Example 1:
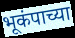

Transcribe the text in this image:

भूकंपाच्या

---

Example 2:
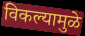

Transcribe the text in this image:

विकल्यामुळे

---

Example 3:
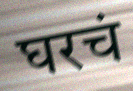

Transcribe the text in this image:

घरचं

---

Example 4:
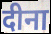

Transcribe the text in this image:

दीना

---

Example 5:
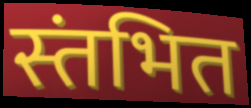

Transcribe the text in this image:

स्तंभित